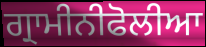
ਗ੍ਰਾਮੀਨੀਫੋਲੀਆ